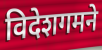
विदेशगमने